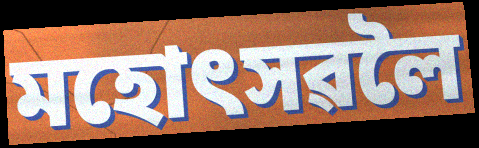
মহোৎসৱলৈ